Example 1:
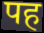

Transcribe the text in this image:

पह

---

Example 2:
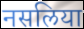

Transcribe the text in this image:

नसलिया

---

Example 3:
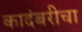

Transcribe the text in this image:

कादंबरीचा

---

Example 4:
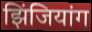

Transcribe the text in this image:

झिंजियांग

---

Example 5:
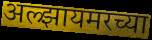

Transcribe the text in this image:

अल्झायमरच्या